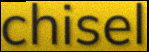
chisel